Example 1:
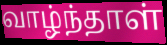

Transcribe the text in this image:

வாழ்ந்தாள்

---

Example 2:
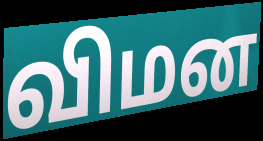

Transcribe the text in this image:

விமன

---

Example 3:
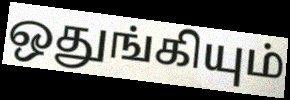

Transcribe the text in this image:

ஒதுங்கியும்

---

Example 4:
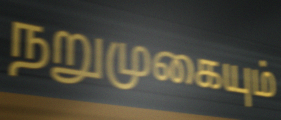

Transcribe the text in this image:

நறுமுகையும்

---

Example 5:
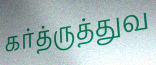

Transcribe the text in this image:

கர்த்ருத்துவ